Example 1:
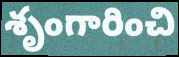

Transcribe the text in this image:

శృంగారించి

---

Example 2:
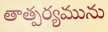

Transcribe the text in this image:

తాత్పర్యమును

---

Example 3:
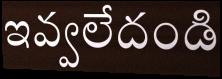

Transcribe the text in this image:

ఇవ్వలేదండి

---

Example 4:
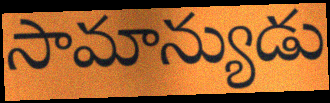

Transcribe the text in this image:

సామాన్యుడు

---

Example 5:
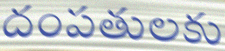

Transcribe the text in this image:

దంపతులకు